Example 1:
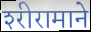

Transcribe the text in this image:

श्रीरामाने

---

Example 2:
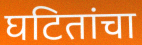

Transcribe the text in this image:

घटितांचा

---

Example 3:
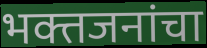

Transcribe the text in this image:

भक्तजनांचा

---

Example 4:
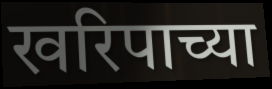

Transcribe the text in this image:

खरिपाच्या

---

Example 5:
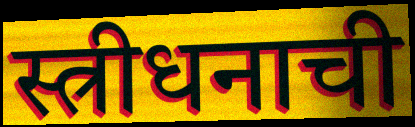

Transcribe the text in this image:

स्त्रीधनाची